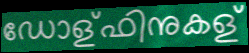
ഡോള്ഫിനുകള്